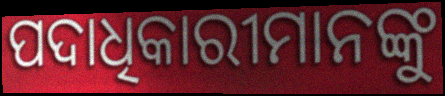
ପଦାଧିକାରୀମାନଙ୍କୁ